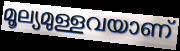
മൂല്യമുള്ളവയാണ്